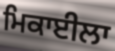
ਮਿਕਾਈਲਾ